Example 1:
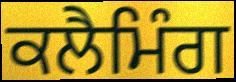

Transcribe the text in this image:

ਕਲੈਮਿੰਗ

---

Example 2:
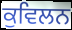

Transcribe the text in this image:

ਕੁਵਿਲਨ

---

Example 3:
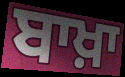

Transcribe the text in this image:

ਬਾਖ਼ਾ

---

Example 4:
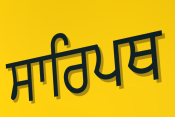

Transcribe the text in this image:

ਸਾਰਿਪਥ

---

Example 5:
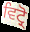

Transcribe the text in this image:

ਵਿਟ੍ਰੋ